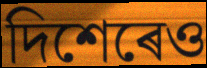
দিশেৰেও